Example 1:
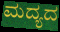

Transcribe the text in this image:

ಮದ್ಯದ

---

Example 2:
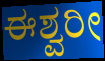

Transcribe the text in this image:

ಈಶ್ವರೀ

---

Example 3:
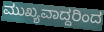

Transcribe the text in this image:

ಮುಖ್ಯವಾದ್ದರಿಂದ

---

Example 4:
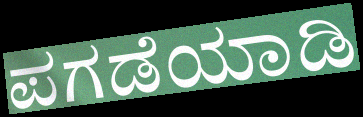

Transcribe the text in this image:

ಪಗಡೆಯಾಡಿ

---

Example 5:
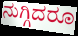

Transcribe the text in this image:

ನುಗ್ಗಿದರೂ